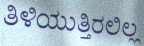
ತಿಳಿಯುತ್ತಿರಲಿಲ್ಲ